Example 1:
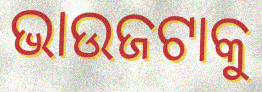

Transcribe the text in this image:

ଭାଉଜଟାକୁ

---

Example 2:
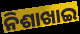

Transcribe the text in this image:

ନିଶାଖାଇ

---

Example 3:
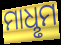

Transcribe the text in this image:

ମାଧୢମ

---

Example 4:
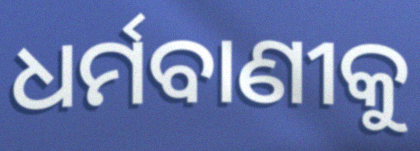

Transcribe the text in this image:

ଧର୍ମବାଣୀକୁ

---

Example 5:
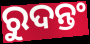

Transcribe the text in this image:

ରୁଦନ୍ତଂ